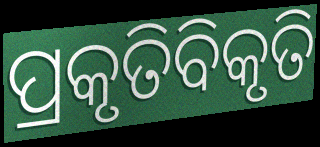
ପ୍ରକୃତିବିକୃତି